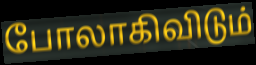
போலாகிவிடும்